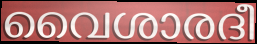
വൈശാരദീ